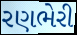
રણભેરી